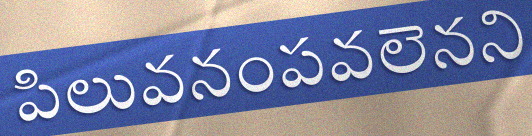
పిలువనంపవలెనని